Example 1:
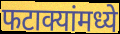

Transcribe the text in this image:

फटाक्यांमध्ये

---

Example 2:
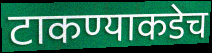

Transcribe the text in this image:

टाकण्याकडेच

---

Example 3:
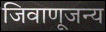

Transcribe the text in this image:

जिवाणूजन्य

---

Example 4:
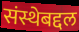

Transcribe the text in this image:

संस्थेबद्दल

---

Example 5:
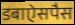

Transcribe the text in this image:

डबाऐसपैस